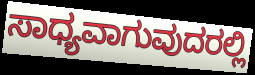
ಸಾಧ್ಯವಾಗುವುದರಲ್ಲಿ